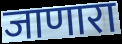
जाणारा